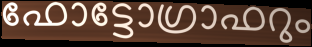
ഫോട്ടോഗ്രാഫറും